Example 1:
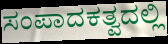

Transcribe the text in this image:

ಸಂಪಾದಕತ್ವದಲ್ಲಿ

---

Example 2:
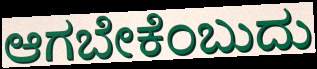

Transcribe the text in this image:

ಆಗಬೇಕೆಂಬುದು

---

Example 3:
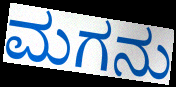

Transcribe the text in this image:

ಮಗನು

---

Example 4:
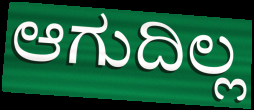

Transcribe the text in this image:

ಆಗುದಿಲ್ಲ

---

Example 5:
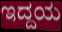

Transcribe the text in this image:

ಇದ್ದಯ